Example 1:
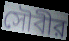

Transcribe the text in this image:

সৌবীর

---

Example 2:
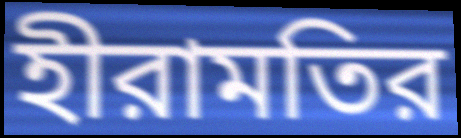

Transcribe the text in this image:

হীরামতির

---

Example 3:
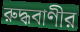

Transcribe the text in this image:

রুদ্ধবাণীর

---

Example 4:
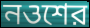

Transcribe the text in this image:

নওশের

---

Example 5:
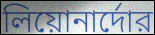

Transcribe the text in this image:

লিয়োনার্দোর